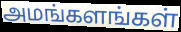
அமங்களங்கள்